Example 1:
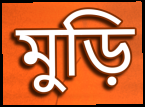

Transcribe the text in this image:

মুড়ি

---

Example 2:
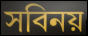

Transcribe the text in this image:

সবিনয়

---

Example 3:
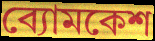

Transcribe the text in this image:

ব্যোমকেশ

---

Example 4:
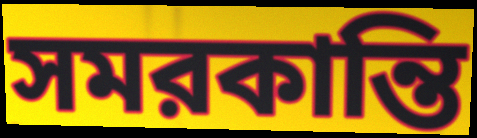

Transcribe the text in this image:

সমরকান্তি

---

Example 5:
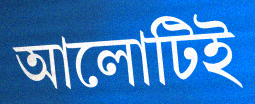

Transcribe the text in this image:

আলোটিই